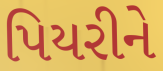
પિયરીને